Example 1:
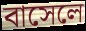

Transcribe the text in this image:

বাসেলে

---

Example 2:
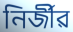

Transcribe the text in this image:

নিৰ্জীৱ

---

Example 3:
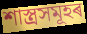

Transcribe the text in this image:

শাস্ত্ৰসমূহৰ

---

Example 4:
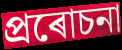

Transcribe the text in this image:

প্ৰৰোচনা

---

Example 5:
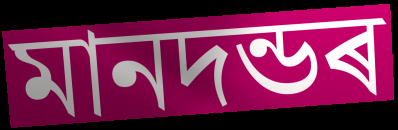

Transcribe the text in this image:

মানদন্ডৰ